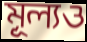
মূল্যও